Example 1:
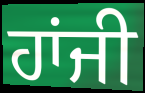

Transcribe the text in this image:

ਹਾਂਜੀ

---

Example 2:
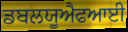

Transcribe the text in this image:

ਡਬਲਯੂਐਫਆਈ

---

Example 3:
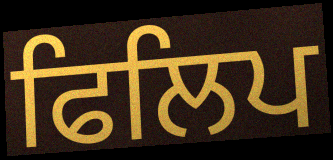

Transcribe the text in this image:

ਫਿਲਿਪ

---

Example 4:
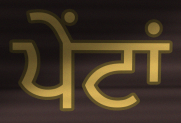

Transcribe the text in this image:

ਪੇਂਟਾਂ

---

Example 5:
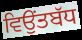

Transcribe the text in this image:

ਵਿਉਂਤਬੱਧ